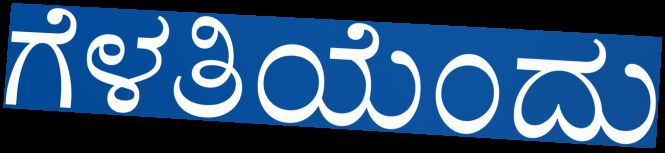
ಗೆಳತಿಯೆಂದು